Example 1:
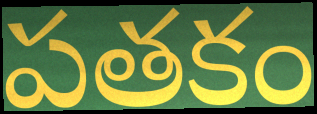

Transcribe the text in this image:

పతకం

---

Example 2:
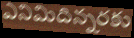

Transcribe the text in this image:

ఎనిమిదిన్నరకు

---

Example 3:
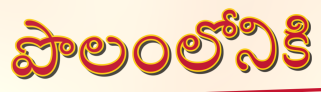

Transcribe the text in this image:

పొలంలోనికి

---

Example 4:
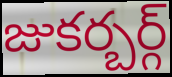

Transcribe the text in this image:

జుకర్బర్గ్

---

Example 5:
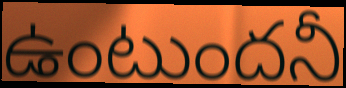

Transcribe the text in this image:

ఉంటుందనీ